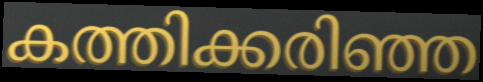
കത്തിക്കരിഞ്ഞ